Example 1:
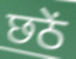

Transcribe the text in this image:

छठें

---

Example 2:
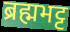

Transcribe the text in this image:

ब्रह्मभट्ट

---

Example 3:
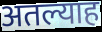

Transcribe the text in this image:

अतल्याह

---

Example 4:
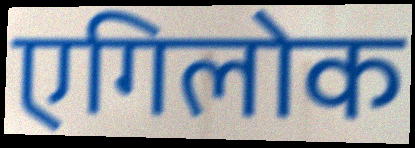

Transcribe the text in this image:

एगिलोक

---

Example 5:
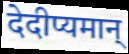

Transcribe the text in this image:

देदीप्यमान्